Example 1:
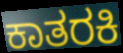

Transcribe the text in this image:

ಕಾತರಕಿ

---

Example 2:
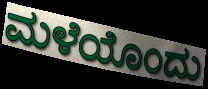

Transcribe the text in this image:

ಮಳೆಯೊಂದು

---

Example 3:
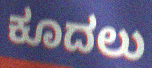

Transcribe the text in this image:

ಕೂದಲು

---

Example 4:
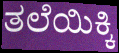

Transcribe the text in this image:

ತಲೆಯಿಕ್ಕಿ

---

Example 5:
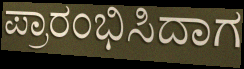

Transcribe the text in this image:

ಪ್ರಾರಂಭಿಸಿದಾಗ